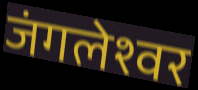
जंगलेश्वर